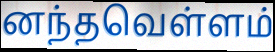
னந்தவெள்ளம்